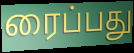
ரைப்பது